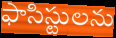
ఫాసిస్టులను